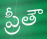
ప్రీతౌ